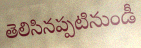
తెలిసినప్పటినుండీ